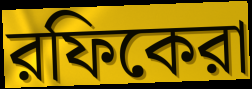
রফিকেরা